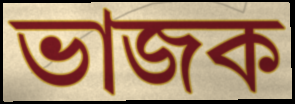
ভাজক